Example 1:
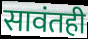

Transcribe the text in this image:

सावंतही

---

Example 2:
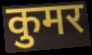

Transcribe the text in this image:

कुमर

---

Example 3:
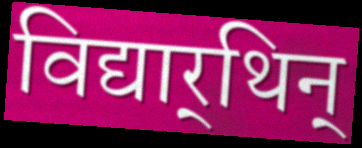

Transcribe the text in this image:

विद्यार्थिन्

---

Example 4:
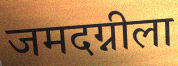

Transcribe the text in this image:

जमदग्नीला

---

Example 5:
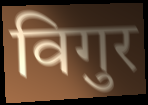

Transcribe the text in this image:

विगुर